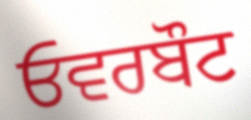
ਓਵਰਬੌਟ